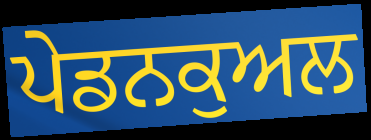
ਪੇਡਨਕੁਅਲ